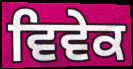
ਵਿਵੇਕ